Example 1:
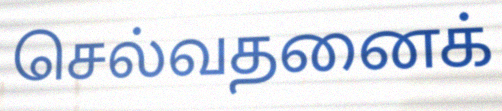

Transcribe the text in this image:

செல்வதனைக்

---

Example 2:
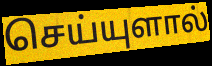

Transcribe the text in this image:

செய்யுளால்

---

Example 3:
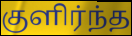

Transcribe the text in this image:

குளிர்ந்த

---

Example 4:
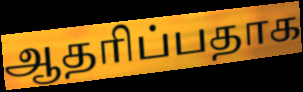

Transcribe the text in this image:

ஆதரிப்பதாக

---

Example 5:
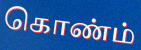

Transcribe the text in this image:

கொண்ம்